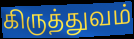
கிருத்துவம்